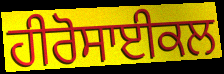
ਹੀਰੋਸਾਈਕਲ